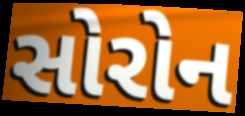
સોરોન